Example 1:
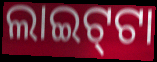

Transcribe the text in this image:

ଲାଇଟ୍‍ଟା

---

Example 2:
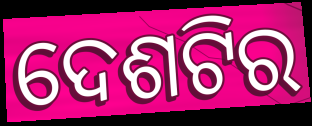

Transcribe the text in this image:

ଦେଶଟିର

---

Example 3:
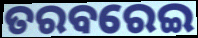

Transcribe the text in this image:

ତରବରେଇ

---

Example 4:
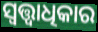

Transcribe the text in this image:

ସ୍ୱତ୍ତ୍ୱାଧିକାର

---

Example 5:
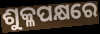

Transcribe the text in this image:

ଶୁକ୍ଳପକ୍ଷରେ